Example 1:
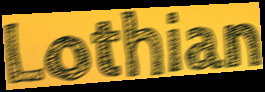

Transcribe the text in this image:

Lothian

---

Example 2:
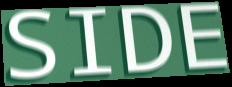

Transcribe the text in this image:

SIDE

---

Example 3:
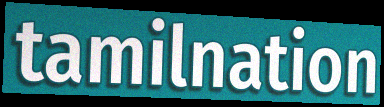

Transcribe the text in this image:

tamilnation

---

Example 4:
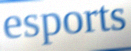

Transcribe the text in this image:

esports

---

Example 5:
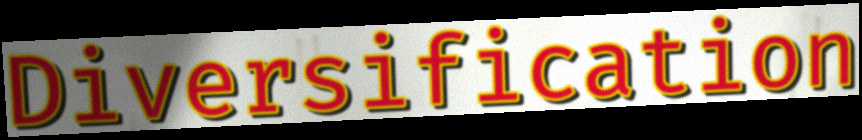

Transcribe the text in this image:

Diversification